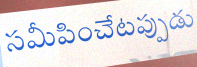
సమీపించేటప్పుడు